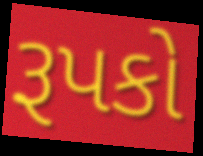
રૂપકો